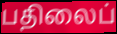
பதிலைப்